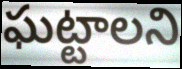
ఘట్టాలని